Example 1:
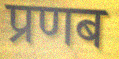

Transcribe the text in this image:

प्रणब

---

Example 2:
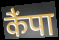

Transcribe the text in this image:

कैंपा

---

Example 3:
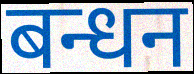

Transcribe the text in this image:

बन्धन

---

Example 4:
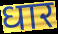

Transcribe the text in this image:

धार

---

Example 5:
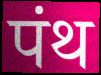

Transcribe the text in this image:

पंथ